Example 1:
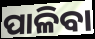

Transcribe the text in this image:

ପାଳିବା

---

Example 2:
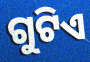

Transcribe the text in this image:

ଗୁଟିଏ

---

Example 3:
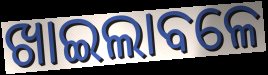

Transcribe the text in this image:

ଖାଇଲାବଳେ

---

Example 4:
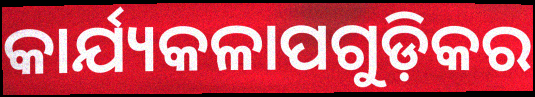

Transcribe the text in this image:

କାର୍ଯ୍ୟକଳାପଗୁଡ଼ିକର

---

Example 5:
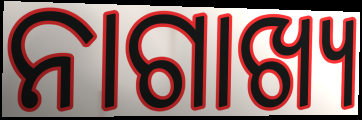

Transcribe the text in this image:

ନାଗାଖ୍ୟ